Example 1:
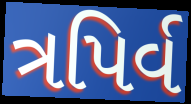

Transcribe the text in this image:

ત્રપિર્વ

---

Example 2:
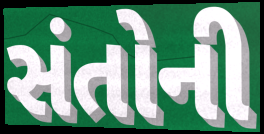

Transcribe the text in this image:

સંતોની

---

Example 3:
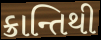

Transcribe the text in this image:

ક્રાન્તિથી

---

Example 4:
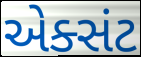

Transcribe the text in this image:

એક્સંટ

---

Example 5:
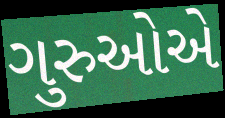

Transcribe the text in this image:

ગુરુઓએ